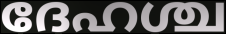
ദേഹശ്ച